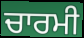
ਚਾਰਮੀ